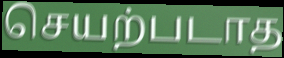
செயற்படாத